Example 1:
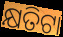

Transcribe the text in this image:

କ୍ଷତିଟା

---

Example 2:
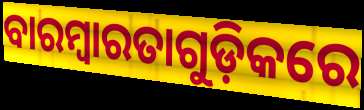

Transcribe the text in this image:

ବାରମ୍ବାରତାଗୁଡ଼ିକରେ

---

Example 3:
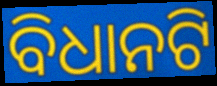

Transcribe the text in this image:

ବିଧାନଟି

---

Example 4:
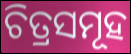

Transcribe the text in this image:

ଚିତ୍ରସମୂହ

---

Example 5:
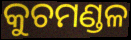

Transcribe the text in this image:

କୁଚମଣ୍ଡଳ